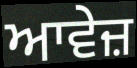
ਆਵੇਜ਼